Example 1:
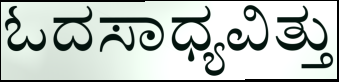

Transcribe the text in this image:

ಓದಸಾಧ್ಯವಿತ್ತು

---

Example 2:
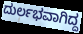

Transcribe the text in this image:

ದುರ್ಲಭವಾಗಿದ್ದ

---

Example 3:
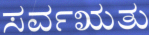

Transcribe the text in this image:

ಸರ್ವಋತು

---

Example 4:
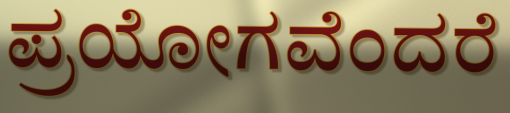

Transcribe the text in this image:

ಪ್ರಯೋಗವೆಂದರೆ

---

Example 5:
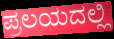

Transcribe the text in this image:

ಪ್ರಲಯದಲ್ಲಿ